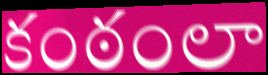
కంఠంలా